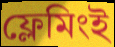
ফ্লেমিংই